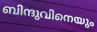
ബിന്ദുവിനെയും